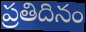
ప్రతిదినం